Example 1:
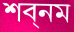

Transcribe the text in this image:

শব্নম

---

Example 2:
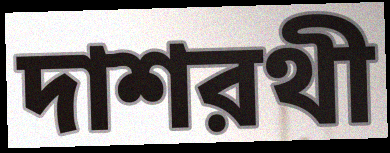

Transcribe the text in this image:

দাশরথী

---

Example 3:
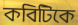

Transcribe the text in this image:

কবিটিকে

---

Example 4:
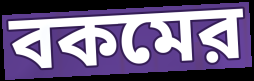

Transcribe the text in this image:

বকমের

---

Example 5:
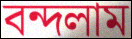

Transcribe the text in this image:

বন্দলাম